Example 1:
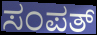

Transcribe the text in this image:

ಸಂಪತ್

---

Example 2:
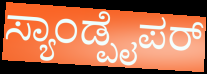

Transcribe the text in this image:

ಸ್ಯಾಂಡ್ಪೈಪರ್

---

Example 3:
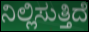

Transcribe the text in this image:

ನಿಲ್ಲಿಸುತ್ತಿದೆ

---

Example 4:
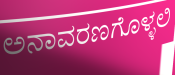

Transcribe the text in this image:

ಅನಾವರಣಗೊಳ್ಳಲಿ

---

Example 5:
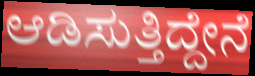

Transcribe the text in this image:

ಆಡಿಸುತ್ತಿದ್ದೇನೆ